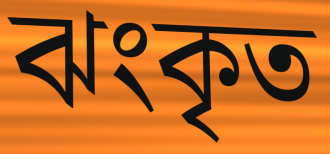
ঝংকৃত